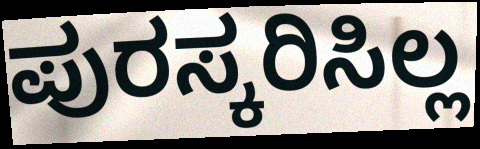
ಪುರಸ್ಕರಿಸಿಲ್ಲ